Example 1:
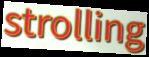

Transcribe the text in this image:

strolling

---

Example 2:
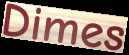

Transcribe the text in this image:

Dimes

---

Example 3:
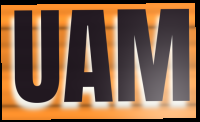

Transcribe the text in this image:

UAM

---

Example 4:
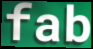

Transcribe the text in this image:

fab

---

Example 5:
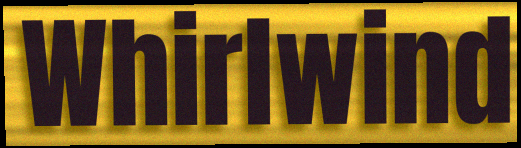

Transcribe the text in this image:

Whirlwind